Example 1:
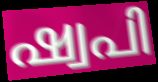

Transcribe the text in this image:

ഷ്വപി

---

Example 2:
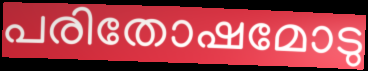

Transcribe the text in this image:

പരിതോഷമോടു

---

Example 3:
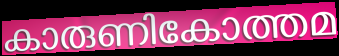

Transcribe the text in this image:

കാരുണികോത്തമ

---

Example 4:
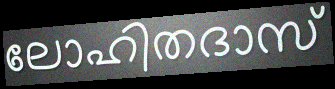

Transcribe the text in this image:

ലോഹിതദാസ്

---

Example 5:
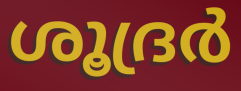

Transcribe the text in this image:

ശൂദ്രർ